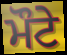
ਮੌਟੇ